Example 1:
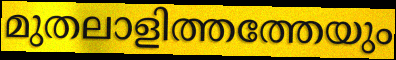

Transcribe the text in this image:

മുതലാളിത്തത്തേയും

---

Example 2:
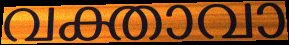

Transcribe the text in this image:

വക്താവാ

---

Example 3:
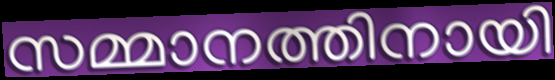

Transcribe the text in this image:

സമ്മാനത്തിനായി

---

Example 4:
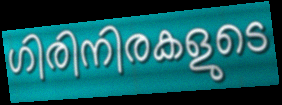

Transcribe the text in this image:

ഗിരിനിരകളുടെ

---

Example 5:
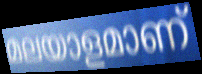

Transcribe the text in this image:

മലയാളമാണ്